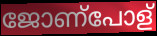
ജോണ്പോള്